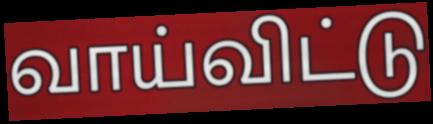
வாய்விட்டு